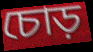
চোড়